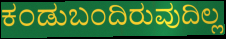
ಕಂಡುಬಂದಿರುವುದಿಲ್ಲ